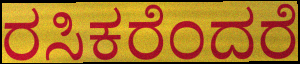
ರಸಿಕರೆಂದರೆ